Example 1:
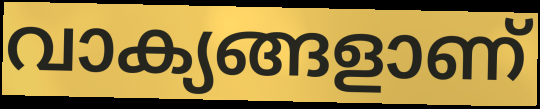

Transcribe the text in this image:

വാക്യങ്ങളാണ്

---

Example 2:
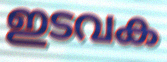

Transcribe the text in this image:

ഇടവക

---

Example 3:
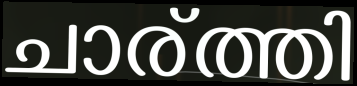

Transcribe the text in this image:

ചാര്ത്തി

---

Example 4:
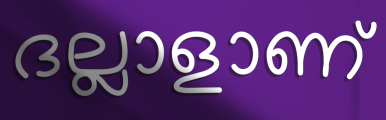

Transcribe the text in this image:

ദല്ലാളാണ്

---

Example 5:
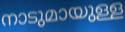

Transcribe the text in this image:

നാടുമായുള്ള